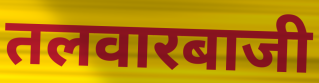
तलवारबाजी